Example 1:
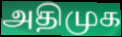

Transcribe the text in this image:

அதிமுக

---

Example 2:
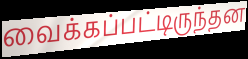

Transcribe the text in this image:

வைக்கப்பட்டிருந்தன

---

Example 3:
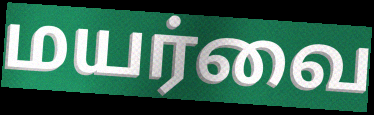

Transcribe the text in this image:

மயர்வை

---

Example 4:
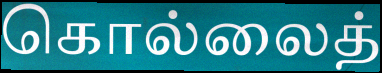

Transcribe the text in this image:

கொல்லைத்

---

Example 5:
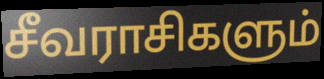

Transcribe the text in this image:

சீவராசிகளும்